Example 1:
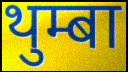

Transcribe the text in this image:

थुम्बा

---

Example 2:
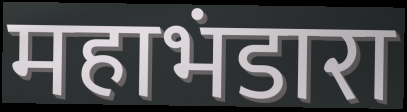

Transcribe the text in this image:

महाभंडारा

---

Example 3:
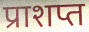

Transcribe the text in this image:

प्राशप्त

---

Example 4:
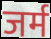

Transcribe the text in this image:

जर्म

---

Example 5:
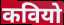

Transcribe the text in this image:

कवियो